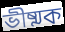
ভীষ্মক